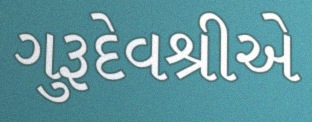
ગુરૂદેવશ્રીએ